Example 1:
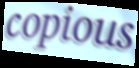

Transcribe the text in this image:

copious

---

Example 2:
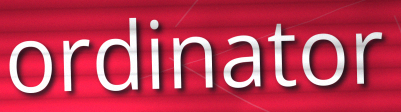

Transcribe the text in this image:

ordinator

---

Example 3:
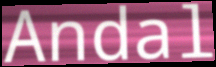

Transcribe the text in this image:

Andal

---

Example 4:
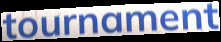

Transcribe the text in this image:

tournament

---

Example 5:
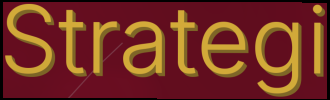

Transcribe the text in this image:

Strategi